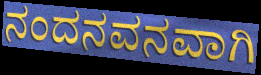
ನಂದನವನವಾಗಿ